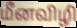
மீனவிழி